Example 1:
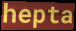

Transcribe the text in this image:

hepta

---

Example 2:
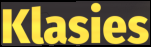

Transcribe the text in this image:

Klasies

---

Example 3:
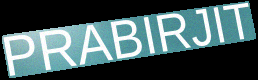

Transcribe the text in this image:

PRABIRJIT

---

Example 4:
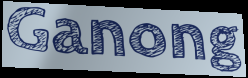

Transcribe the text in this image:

Ganong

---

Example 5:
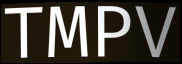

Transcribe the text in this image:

TMPV